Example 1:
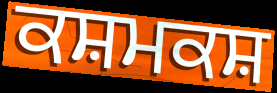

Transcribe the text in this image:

ਕਸ਼ਮਕਸ਼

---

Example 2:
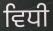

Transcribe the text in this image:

ਵਿਧੀ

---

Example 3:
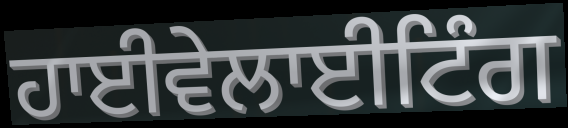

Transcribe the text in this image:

ਹਾਈਵੇਲਾਈਟਿੰਗ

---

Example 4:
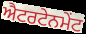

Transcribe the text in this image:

ਐਟਰਟੇਨਮੇਂਟ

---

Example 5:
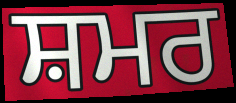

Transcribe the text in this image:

ਸ਼ਮਰ